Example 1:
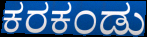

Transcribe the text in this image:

ಕರಕಂಡು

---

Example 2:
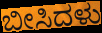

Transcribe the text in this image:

ಬೀಸಿದಳು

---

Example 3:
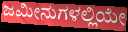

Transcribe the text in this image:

ಜಮೀನುಗಳಲ್ಲಿಯೇ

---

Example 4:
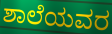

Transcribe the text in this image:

ಶಾಲೆಯವರ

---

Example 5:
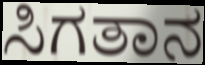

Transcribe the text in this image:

ಸಿಗತಾನ